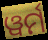
ୱର୍ମ